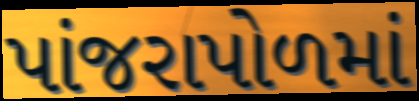
પાંજરાપોળમાં